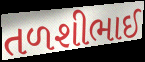
તળશીભાઈ